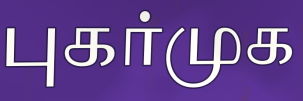
புகர்முக